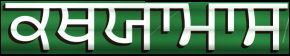
ਕਥਯਾਮਾਸ